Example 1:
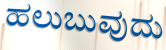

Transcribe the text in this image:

ಹಲುಬುವುದು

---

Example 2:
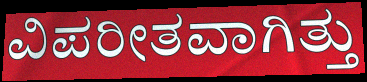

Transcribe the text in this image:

ವಿಪರೀತವಾಗಿತ್ತು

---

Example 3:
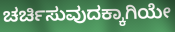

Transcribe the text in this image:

ಚರ್ಚಿಸುವುದಕ್ಕಾಗಿಯೇ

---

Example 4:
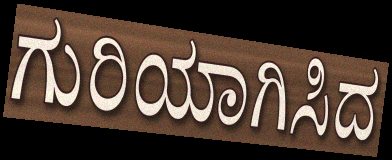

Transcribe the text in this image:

ಗುರಿಯಾಗಿಸಿದ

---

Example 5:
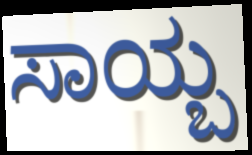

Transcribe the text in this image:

ಸಾಯ್ಬ